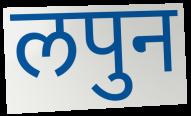
लपुन